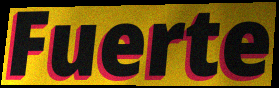
Fuerte